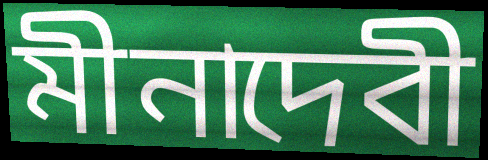
মীনাদেবী